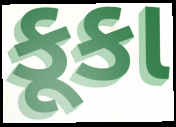
કૂકા